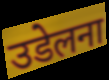
उडेलना